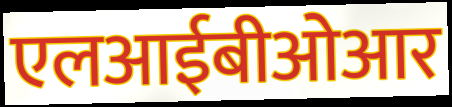
एलआईबीओआर